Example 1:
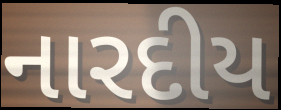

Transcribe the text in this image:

નારદીય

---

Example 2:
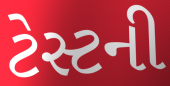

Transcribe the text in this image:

ટેસ્ટની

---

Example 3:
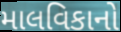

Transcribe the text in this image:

માલવિકાનો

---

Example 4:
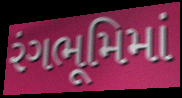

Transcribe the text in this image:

રંગભૂમિમાં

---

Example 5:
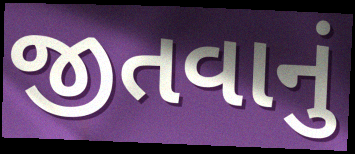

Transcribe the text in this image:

જીતવાનું